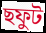
ছফুট